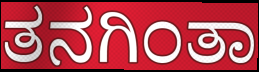
ತನಗಿಂತಾ